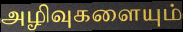
அழிவுகளையும்